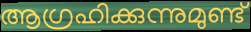
ആഗ്രഹിക്കുന്നുമുണ്ട്